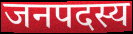
जनपदस्य